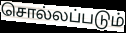
சொல்லப்படும்